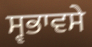
ਸ੍ਵਭਾਵਸੇ